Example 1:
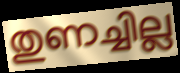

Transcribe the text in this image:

തുണച്ചില്ല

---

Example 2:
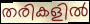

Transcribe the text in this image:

തരികളിൽ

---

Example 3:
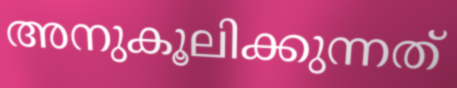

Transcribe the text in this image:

അനുകൂലിക്കുന്നത്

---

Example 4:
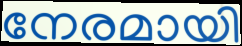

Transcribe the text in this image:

നേരമായി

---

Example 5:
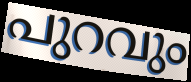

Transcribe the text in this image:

പുറവും